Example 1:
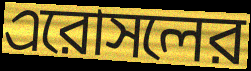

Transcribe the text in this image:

এরোসলের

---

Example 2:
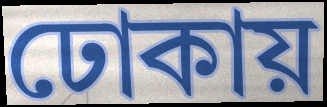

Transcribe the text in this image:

ঢোকায়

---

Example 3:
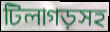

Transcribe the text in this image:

টিলাগড়সহ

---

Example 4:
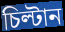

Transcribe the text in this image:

চিল্টান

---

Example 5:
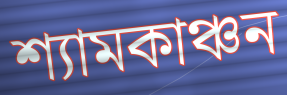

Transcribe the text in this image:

শ্যামকাঞ্চন